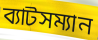
ব্যাটসম্যান